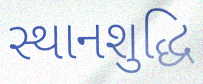
સ્થાનશુદ્ધિ